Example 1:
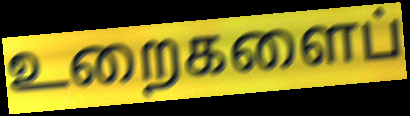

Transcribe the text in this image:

உறைகளைப்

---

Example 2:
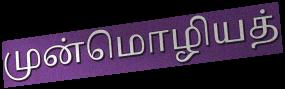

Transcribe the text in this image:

முன்மொழியத்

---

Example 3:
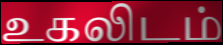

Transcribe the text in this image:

உகலிடம்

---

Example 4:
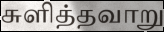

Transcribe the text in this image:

சுளித்தவாறு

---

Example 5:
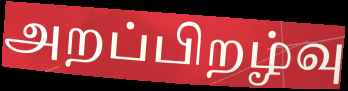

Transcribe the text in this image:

அறப்பிறழ்வு